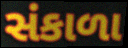
સંકાળા